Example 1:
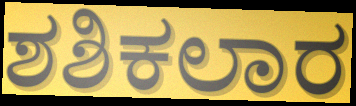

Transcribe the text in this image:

ಶಶಿಕಲಾರ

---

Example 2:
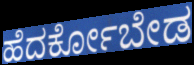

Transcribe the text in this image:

ಹೆದರ್ಕೋಬೇಡ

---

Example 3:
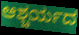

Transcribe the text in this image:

ಆಶ್ಚರ್ಯದ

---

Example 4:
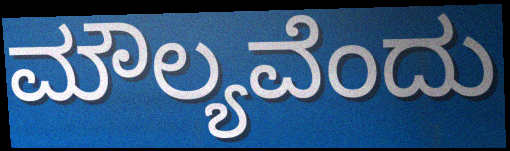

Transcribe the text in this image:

ಮೌಲ್ಯವೆಂದು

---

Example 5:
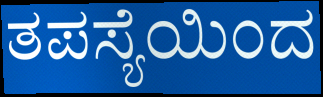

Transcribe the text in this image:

ತಪಸ್ಯೆಯಿಂದ